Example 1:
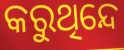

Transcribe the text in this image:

କରୁଥିନ୍ଦେ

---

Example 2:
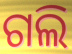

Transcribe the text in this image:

ଗଲି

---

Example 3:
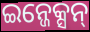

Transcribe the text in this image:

ଇନ୍ଜେକ୍ସନ୍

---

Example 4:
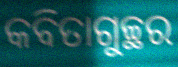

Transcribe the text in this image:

କବିତାଗୁଚ୍ଛର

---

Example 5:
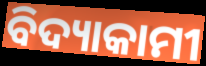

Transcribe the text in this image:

ବିଦ୍ୟାକାମୀ